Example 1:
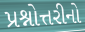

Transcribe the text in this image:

પ્રશ્નોત્તરીનો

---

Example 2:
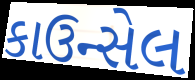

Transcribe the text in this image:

કાઉન્સેલ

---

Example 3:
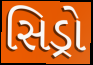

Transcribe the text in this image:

સિડ્રો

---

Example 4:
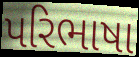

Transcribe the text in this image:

પરિભાષા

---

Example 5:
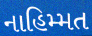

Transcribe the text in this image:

નાહિમ્મત